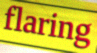
flaring